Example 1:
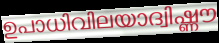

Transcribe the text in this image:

ഉപാധിവിലയാദ്വിഷ്ണൗ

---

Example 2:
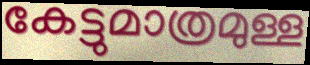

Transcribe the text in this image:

കേട്ടുമാത്രമുള്ള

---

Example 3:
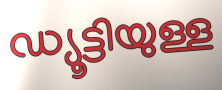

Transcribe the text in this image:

ഡ്യൂട്ടിയുള്ള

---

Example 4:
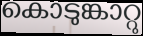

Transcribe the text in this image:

കൊടുങ്കാറ്റു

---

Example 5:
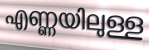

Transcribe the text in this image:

എണ്ണയിലുള്ള